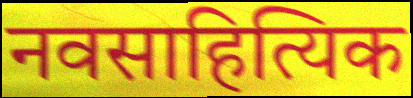
नवसाहित्यिक